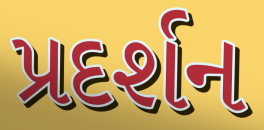
પ્રદર્શન